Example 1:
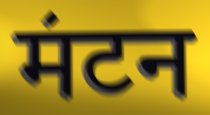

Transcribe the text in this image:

मंटन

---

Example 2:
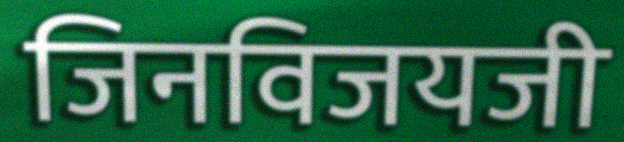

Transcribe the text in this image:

जिनविजयजी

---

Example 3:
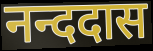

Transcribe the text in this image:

नन्ददास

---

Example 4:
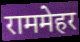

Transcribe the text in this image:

राममेहर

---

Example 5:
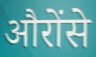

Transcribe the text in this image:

औरोंसे